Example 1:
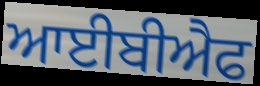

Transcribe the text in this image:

ਆਈਬੀਐਫ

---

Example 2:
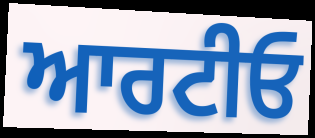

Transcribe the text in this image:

ਆਰਟੀਓ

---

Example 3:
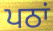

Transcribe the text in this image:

ਪਠਾਂ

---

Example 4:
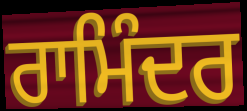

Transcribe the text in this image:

ਰਾਮਿੰਦਰ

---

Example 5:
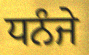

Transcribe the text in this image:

ਧਨੰਜੇ